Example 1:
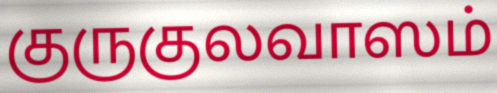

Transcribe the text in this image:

குருகுலவாஸம்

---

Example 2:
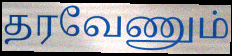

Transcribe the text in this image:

தரவேணும்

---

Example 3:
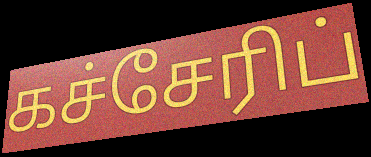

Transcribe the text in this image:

கச்சேரிப்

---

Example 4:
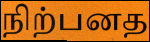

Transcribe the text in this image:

நிற்பனத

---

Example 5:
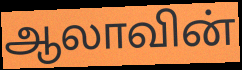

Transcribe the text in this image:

ஆலாவின்